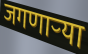
जगणाऱ्या